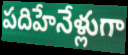
పదిహేనేళ్లుగా